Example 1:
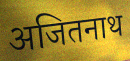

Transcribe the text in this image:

अजितनाथ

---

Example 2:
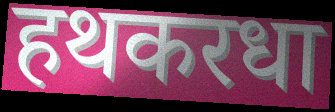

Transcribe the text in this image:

हथकरधा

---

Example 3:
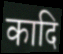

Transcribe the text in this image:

कादि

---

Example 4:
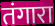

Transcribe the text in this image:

तंगारा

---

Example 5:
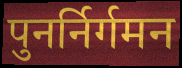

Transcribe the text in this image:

पुनर्निर्गमन